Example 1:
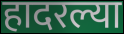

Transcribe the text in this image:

हादरल्या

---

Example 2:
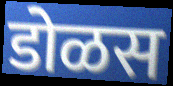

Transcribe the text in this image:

डोळस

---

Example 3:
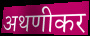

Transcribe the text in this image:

अथणीकर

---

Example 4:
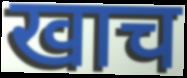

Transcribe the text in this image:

खाच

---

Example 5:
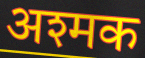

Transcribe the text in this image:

अश्मक